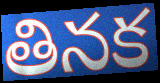
తినక